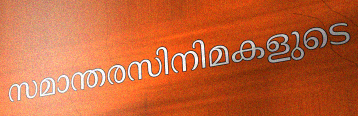
സമാന്തരസിനിമകളുടെ